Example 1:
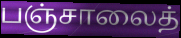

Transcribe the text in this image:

பஞ்சாலைத்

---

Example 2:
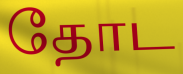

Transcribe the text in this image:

தோட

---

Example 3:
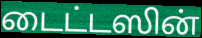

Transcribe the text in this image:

டைட்டஸின்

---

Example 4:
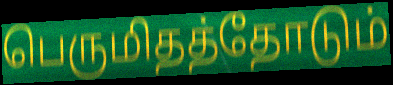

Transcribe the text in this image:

பெருமிதத்தோடும்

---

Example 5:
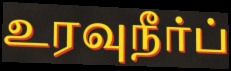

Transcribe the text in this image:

உரவுநீர்ப்